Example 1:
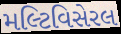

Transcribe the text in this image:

મલ્ટિવિસેરલ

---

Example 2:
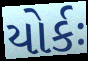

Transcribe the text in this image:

યોર્કઃ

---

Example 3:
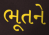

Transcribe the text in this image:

ભૂતને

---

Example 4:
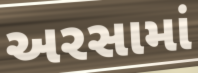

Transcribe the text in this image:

અરસામાં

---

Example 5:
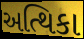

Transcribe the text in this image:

અત્થિકા